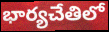
భార్యచేతిలో